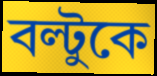
বল্টুকে